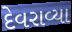
દેવરાવ્યા